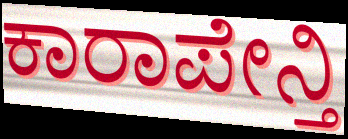
ಕಾರಾಪೇನ್ತಿ